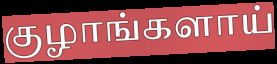
குழாங்களாய்